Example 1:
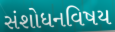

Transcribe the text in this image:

સંશોધનવિષય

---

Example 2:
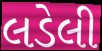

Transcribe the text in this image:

લડેલી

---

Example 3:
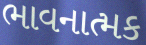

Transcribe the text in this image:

ભાવનાત્મક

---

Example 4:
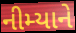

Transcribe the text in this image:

નીમ્યાને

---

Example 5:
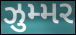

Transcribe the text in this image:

ઝુમ્મર